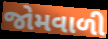
જોમવાળી